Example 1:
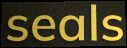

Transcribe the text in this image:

seals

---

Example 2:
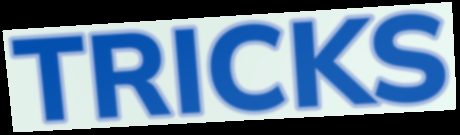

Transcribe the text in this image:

TRICKS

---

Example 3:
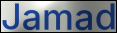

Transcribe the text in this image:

Jamad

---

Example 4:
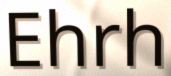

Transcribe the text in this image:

Ehrh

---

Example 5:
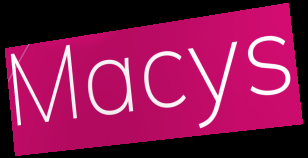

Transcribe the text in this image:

Macys